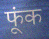
फूंक